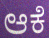
ಆಕೆ